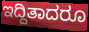
ಇದ್ದಿತಾದರೂ